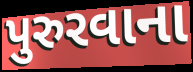
પુરુરવાના